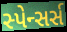
સ્પેન્સર્સ